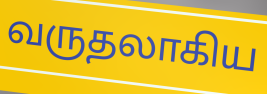
வருதலாகிய